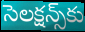
సెలక్షన్స్‌కు